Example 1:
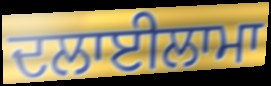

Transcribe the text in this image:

ਦਲਾਈਲਾਮਾ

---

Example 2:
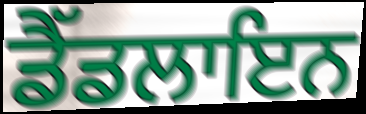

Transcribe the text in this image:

ਡੈੱਡਲਾਇਨ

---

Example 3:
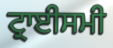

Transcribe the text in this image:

ਟ੍ਰਾਈਸਮੀ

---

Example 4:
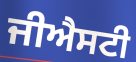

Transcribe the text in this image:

ਜੀਐਸਟੀ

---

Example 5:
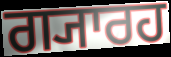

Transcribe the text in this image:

ਗ੍ਯਾਰਹ